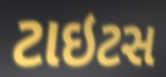
ટાઇટસ